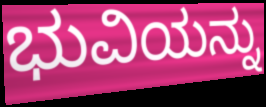
ಭುವಿಯನ್ನು